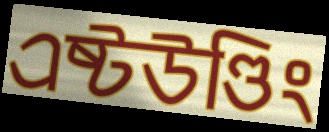
এষ্টউণ্ডিং